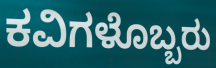
ಕವಿಗಳೊಬ್ಬರು